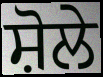
ਸ਼ੋਲੇ